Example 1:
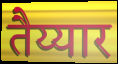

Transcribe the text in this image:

तैय्यार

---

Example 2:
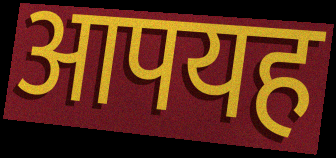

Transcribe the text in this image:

आपयह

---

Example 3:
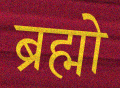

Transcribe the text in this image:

ब्रह्मो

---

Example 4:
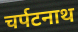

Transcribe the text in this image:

चर्पटनाथ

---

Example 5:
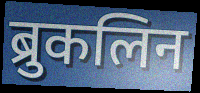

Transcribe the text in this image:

ब्रुकलिन